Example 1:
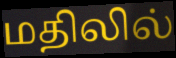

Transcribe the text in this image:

மதிலில்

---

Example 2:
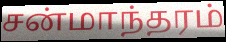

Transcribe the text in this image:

சன்மாந்தரம்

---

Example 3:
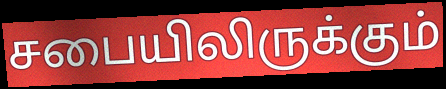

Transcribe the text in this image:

சபையிலிருக்கும்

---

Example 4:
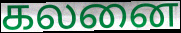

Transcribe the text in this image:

கலனை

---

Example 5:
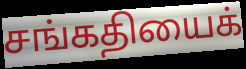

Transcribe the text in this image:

சங்கதியைக்